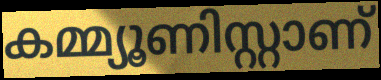
കമ്മ്യൂണിസ്റ്റാണ്